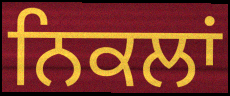
ਨਿਕਲਾਂ